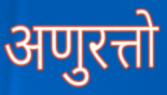
अणुरत्तो